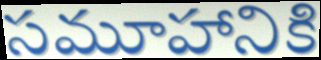
సమూహానికి